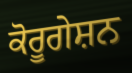
ਕੋਰੂਗੇਸ਼ਨ